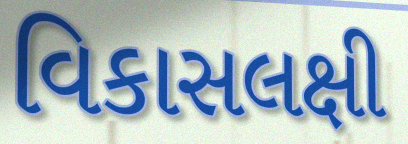
વિકાસલક્ષી